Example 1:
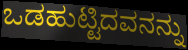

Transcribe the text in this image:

ಒಡಹುಟ್ಟಿದವನನ್ನು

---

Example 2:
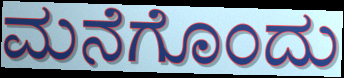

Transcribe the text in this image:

ಮನೆಗೊಂದು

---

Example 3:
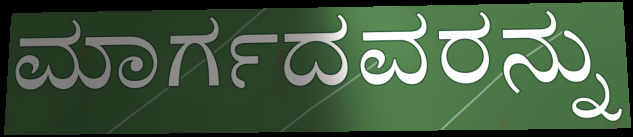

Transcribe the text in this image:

ಮಾರ್ಗದವರನ್ನು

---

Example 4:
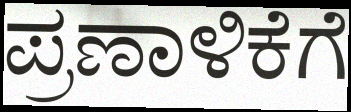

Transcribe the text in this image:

ಪ್ರಣಾಳಿಕೆಗೆ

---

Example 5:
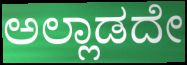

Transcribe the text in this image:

ಅಲ್ಲಾಡದೇ